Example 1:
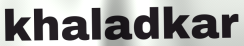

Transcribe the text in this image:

khaladkar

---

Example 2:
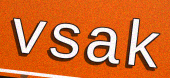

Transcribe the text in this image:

vsak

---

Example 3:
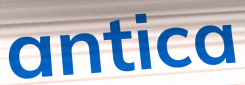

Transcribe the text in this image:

antica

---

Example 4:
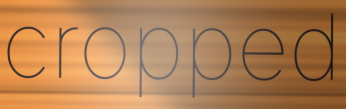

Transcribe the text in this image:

cropped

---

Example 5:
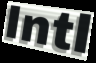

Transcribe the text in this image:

Intl